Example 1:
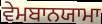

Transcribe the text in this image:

ਵੇਮਬਾਨਯਾਮਾ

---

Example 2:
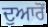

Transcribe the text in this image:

ਦੁਆਰੋਂ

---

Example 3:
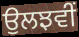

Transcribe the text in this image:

ਉਲਝਵੀਂ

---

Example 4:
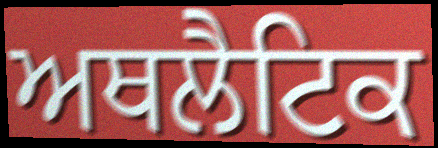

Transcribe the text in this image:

ਅਥਲੈਟਿਕ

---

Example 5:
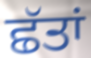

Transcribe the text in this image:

ਛੱਤਾਂ